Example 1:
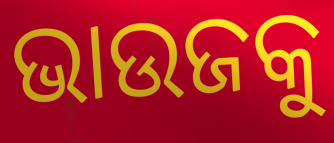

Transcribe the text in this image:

ଭାଉଜକୁ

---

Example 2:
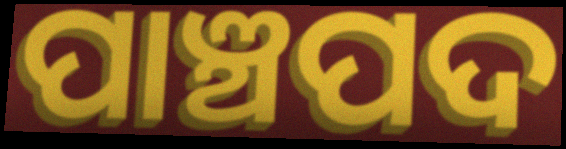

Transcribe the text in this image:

ପାଞ୍ଚପଦ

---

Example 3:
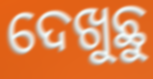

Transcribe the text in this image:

ଦେଖୁଛୁ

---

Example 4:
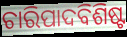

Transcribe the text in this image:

ଚାରିପାଦବିଶିଷ୍ଟ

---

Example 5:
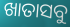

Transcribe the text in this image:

ଖାତାସବୁ